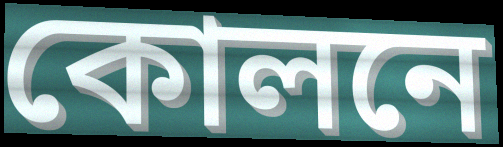
কোলনে